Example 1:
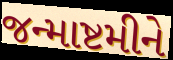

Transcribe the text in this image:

જન્માષ્ટમીને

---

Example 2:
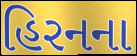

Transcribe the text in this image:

હિરનના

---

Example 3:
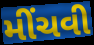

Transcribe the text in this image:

મીંચવી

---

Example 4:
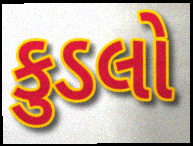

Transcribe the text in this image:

કુડલો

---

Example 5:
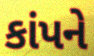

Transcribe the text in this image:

કાંપને